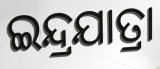
ଇନ୍ଦ୍ରଯାତ୍ରା